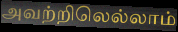
அவற்றிலெல்லாம்